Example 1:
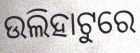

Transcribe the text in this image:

ଉଲିହାଟୁରେ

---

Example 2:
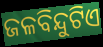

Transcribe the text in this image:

ଜଳବିନ୍ଦୁଟିଏ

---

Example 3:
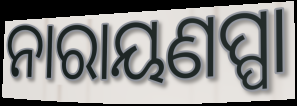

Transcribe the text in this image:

ନାରାୟଣପ୍ପା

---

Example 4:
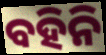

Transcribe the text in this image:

ବହିନି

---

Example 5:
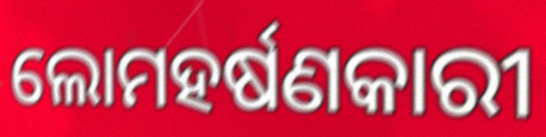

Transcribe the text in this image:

ଲୋମହର୍ଷଣକାରୀ